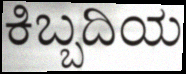
ಕಿಬ್ಬದಿಯ